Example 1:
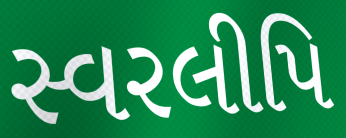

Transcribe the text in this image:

સ્વરલીપિ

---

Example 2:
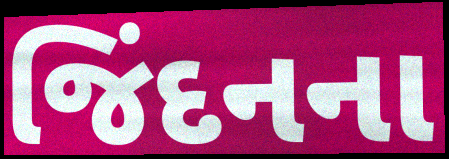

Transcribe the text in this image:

જિંદનના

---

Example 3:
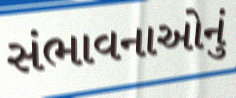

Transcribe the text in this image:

સંભાવનાઓનું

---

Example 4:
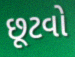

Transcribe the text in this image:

છૂટવો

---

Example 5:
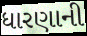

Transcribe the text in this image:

ધારણાની